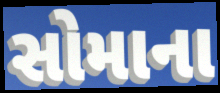
સોમાના